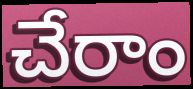
చేరాం